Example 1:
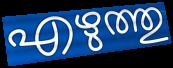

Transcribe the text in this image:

എഴുത്തു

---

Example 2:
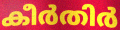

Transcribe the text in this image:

കീർതിർ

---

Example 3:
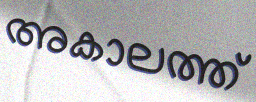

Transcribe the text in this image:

അകാലത്ത്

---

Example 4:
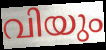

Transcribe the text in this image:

വിയും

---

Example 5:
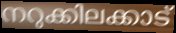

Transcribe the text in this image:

നറുക്കിലക്കാട്